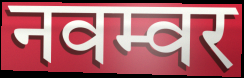
नवम्वर